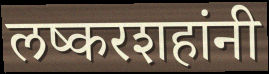
लष्करशहांनी